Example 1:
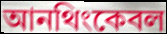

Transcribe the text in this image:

আনথিংকেবল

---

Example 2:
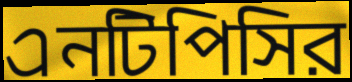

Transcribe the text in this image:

এনটিপিসির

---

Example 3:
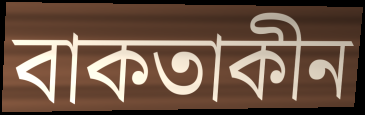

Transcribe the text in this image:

বাকতাকীন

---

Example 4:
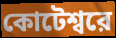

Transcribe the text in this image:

কোটেশ্বরে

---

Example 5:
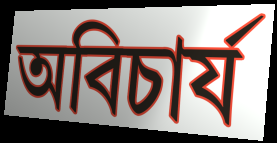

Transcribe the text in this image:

অবিচার্য